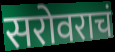
सरोवराचं